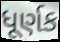
ધૂર્ણક